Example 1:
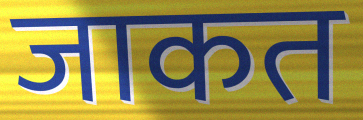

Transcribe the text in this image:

जाकत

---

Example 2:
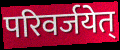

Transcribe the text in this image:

परिवर्जयेत्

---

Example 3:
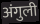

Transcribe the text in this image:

अंगुली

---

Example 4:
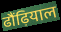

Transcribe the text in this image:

ढौंढ़ियाल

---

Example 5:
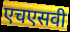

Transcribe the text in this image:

एचएसवी